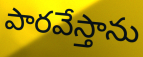
పారవేస్తాను